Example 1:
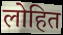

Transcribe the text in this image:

लोहित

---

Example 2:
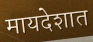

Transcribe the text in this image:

मायदेशात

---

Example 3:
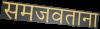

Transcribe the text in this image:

समजवताना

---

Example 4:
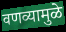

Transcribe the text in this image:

वणव्यामुळे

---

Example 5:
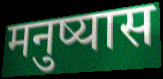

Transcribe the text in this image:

मनुष्यास